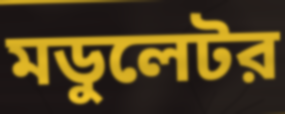
মডুলেটর